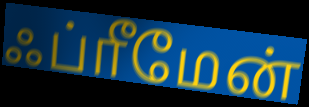
ஃப்ரீமேன்